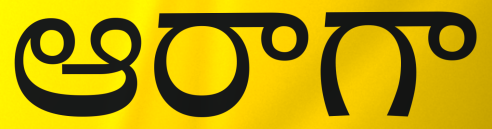
ఆరాగా